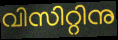
വിസിറ്റിനു